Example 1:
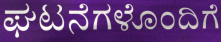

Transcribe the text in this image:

ಘಟನೆಗಳೊಂದಿಗೆ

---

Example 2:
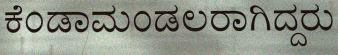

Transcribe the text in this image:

ಕೆಂಡಾಮಂಡಲರಾಗಿದ್ದರು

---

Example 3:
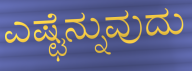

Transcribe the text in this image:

ಎಷ್ಟೆನ್ನುವುದು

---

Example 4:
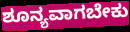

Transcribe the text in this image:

ಶೂನ್ಯವಾಗಬೇಕು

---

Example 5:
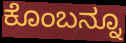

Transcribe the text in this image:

ಕೊಂಬನ್ನೂ